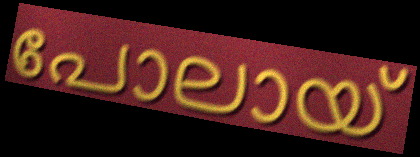
പോലായ്